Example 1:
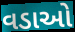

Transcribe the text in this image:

વડાઓ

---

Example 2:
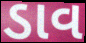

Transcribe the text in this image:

ડાવ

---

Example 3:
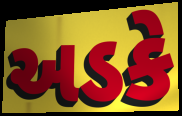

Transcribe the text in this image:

અડકે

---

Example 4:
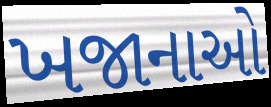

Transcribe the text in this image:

ખજાનાઓ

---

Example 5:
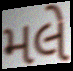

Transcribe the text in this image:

મલે